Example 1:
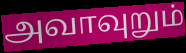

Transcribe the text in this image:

அவாவுறும்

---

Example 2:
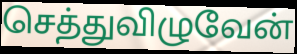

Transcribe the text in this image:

செத்துவிழுவேன்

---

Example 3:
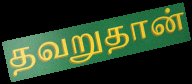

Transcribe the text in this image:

தவறுதான்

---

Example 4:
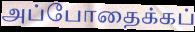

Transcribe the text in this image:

அப்போதைக்கப்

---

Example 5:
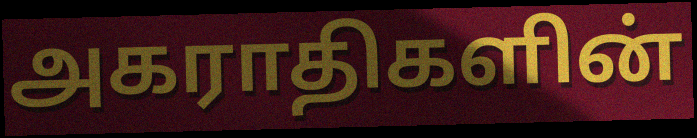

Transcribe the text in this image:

அகராதிகளின்